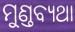
ମୁଣ୍ଡବ୍ୟଥା